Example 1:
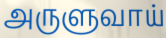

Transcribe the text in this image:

அருளுவாய்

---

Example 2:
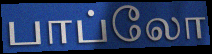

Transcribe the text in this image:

பாப்லோ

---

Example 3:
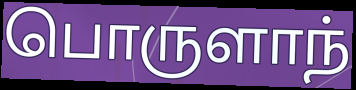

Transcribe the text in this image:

பொருளாந்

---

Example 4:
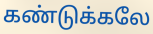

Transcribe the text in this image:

கண்டுக்கலே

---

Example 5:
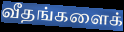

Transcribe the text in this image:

வீதங்களைக்